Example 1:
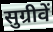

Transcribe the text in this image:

सुग्रीवें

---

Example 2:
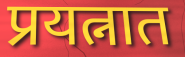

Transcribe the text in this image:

प्रयत्नात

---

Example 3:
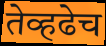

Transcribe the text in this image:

तेव्हढेच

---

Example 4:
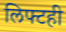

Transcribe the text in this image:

लिफ्टही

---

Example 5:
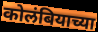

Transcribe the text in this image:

कोलंबियाच्या